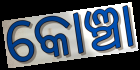
କୋଞ୍ଚା